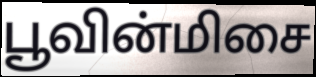
பூவின்மிசை